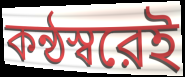
কন্ঠস্বরেই